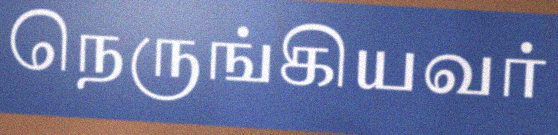
நெருங்கியவர்